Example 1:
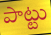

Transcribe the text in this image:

పాట్టు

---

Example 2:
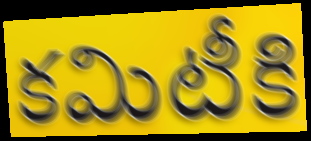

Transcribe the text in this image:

కమిటీకి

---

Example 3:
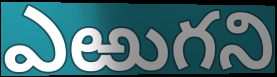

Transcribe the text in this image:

ఎఱుగని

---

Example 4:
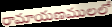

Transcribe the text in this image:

రామాయణములలో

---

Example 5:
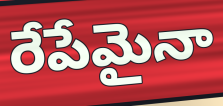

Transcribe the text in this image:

రేపేమైనా